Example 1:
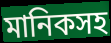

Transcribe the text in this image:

মানিকসহ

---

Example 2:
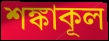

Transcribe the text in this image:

শঙ্কাকূল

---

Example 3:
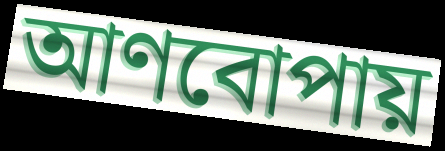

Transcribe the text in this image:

আণবোপায়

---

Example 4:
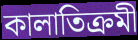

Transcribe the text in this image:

কালাতিক্রমী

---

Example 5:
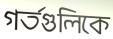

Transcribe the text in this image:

গর্তগুলিকে